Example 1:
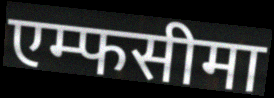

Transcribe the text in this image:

एम्फसीमा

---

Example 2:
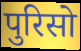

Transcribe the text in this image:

पुरिसो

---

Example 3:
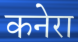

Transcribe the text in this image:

कनेरा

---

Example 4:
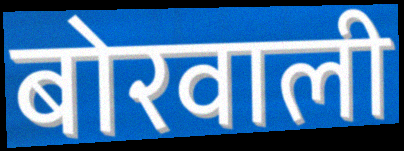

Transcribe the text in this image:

बोरवाली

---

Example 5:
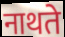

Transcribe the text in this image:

नाथते